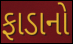
ફાડાનો